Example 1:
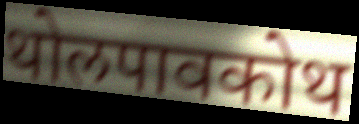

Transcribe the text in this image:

थोलपावकोथ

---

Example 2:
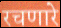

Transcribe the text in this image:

रचणारे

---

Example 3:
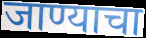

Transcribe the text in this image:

जाण्‍याचा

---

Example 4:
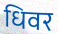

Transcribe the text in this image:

धिवर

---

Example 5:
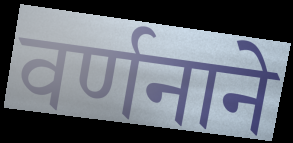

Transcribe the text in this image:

वर्णनाने